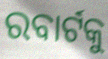
ରବାର୍ଟକୁ